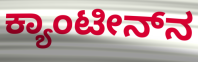
ಕ್ಯಾಂಟೀನ್‌ನ